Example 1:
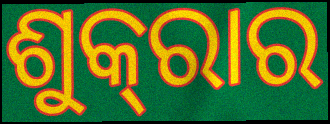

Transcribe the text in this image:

ଶୁକ୍‌ରାର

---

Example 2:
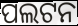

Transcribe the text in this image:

ପଲଟନ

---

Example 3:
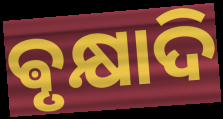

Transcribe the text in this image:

ଵୃକ୍ଷାଦି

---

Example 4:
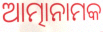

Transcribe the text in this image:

ଆତ୍ମାନାମକ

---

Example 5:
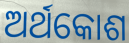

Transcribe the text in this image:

ଅର୍ଥକୋଶ